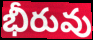
భీరువు